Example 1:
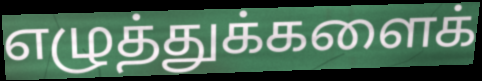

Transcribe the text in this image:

எழுத்துக்களைக்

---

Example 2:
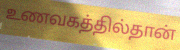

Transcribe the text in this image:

உணவகத்தில்தான்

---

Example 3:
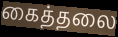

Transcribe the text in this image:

கைத்தலை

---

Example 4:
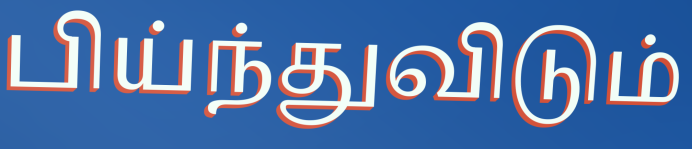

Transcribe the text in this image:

பிய்ந்துவிடும்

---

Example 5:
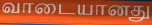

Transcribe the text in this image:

வாடையானது